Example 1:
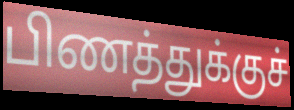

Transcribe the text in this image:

பிணத்துக்குச்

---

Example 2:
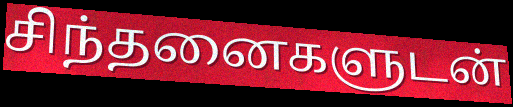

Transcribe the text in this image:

சிந்தனைகளுடன்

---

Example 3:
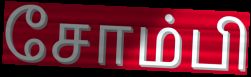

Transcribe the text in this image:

சோம்பி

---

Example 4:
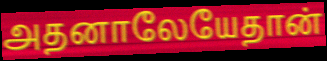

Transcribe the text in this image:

அதனாலேயேதான்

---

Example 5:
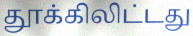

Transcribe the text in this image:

தூக்கிலிட்டது